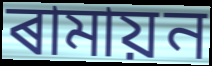
ৰামায়ন